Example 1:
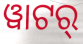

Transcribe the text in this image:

ୱାଟର୍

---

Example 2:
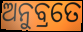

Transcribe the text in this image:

ଅନୁବ୍ରତେ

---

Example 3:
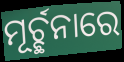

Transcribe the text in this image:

ମୂର୍ଚ୍ଛନାରେ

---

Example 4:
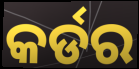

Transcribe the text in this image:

କର୍ଡର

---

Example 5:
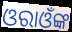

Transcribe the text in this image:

ଓରାଓଁଙ୍କ